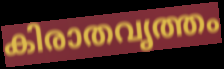
കിരാതവൃത്തം